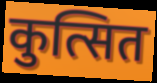
कुत्सित